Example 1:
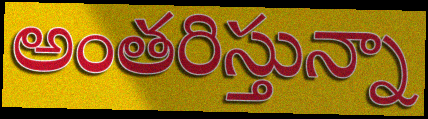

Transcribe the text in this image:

అంతరిస్తున్నా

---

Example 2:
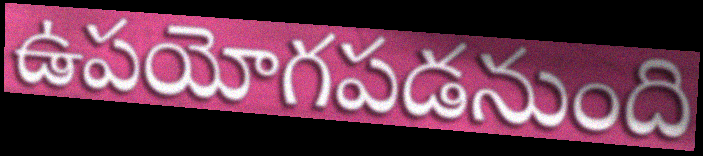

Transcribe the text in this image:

ఉపయోగపడనుంది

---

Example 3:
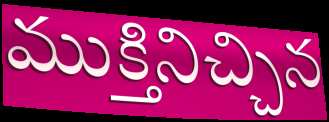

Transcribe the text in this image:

ముక్తినిచ్చిన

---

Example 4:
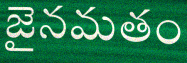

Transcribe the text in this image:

జైనమతం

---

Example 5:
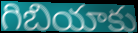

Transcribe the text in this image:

గిబియాకు